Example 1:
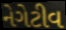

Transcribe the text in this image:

નેગેટીવ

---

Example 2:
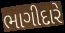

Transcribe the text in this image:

ભાગીદારે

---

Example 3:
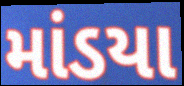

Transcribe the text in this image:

માંડયા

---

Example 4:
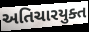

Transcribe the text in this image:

અતિચારયુક્ત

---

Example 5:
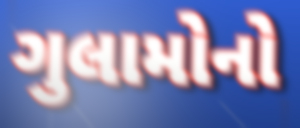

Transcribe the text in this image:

ગુલામોનો